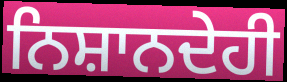
ਨਿਸ਼ਾਨਦੇਹੀ